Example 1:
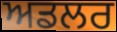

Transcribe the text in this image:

ਅਡਲਰ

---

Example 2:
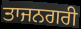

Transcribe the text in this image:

ਤਾਜਨਗਰੀ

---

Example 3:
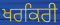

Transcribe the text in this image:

ਖਰਕਿਰੀ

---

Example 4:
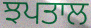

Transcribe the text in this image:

ਝਪਤਾਲ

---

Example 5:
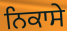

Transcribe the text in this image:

ਨਿਕਾਸੇ